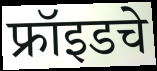
फ्रॉइडचे